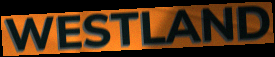
WESTLAND